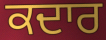
ਕਦਾਰ